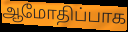
ஆமோதிப்பாக